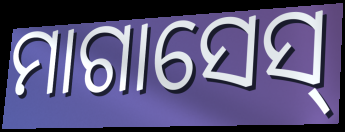
ମାଗାସେସ୍